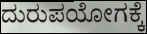
ದುರುಪಯೋಗಕ್ಕೆ